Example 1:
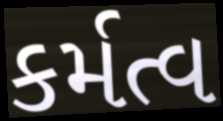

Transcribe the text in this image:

કર્મત્વ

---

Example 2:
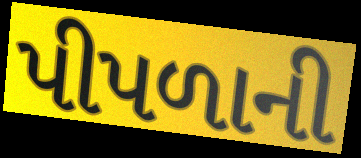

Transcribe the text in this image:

પીપળાની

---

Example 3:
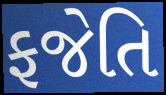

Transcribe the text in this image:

ફજેતિ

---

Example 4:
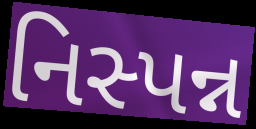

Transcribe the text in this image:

નિસ્પન્ન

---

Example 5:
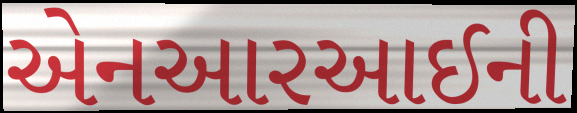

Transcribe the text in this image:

એનઆરઆઈની